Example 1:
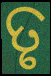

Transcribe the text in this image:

ତୃ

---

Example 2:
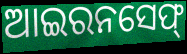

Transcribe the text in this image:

ଆଇରନସେଫ୍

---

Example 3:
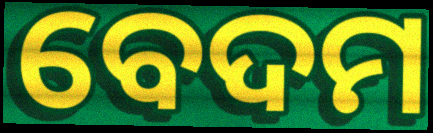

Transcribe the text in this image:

ବେଦମ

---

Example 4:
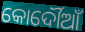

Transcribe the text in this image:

କୋର୍ଦୌଆଁ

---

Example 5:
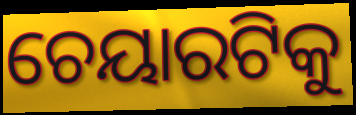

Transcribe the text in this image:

ଚେୟାରଟିକୁ